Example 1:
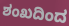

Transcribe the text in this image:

ಶಂಖದಿಂದ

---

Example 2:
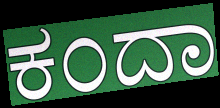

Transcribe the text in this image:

ಕಂದಾ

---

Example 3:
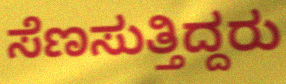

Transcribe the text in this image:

ಸೆಣಸುತ್ತಿದ್ದರು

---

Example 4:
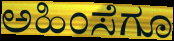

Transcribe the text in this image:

ಅಹಿಂಸೆಗೂ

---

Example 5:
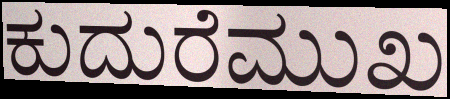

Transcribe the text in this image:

ಕುದುರೆಮುಖ